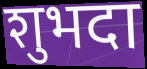
शुभदा